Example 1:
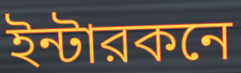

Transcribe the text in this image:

ইন্টারকনে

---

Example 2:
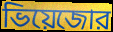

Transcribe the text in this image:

ভিয়েজোর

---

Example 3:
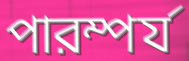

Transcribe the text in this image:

পারম্পর্য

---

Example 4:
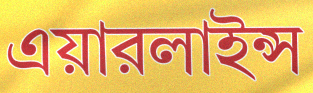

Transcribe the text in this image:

এয়ারলাইন্স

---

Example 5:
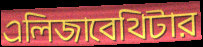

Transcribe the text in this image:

এলিজাবেথিটার